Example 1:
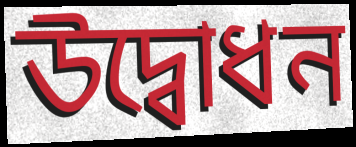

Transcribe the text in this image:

উদ্বোধন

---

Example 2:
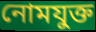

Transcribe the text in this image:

নোমযুক্ত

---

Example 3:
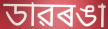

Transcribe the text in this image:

ডাৱৰঙা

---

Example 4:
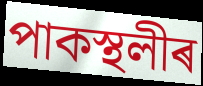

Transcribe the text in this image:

পাকস্থলীৰ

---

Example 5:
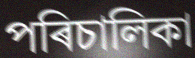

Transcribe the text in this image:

পৰিচালিকা